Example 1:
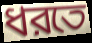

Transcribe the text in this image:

ধরতে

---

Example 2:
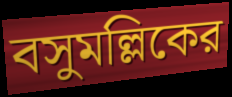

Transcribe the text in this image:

বসুমল্লিকের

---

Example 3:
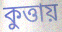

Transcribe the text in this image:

কুত্তায়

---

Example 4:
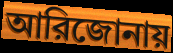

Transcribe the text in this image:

আরিজোনায়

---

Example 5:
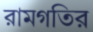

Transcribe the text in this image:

রামগতির